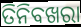
ତିନିବଖରା